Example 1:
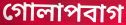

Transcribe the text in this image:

গোলাপবাগ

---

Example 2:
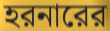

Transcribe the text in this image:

হরনারের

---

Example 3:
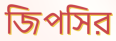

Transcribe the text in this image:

জিপসির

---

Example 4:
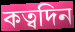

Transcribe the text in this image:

কত্বদিন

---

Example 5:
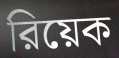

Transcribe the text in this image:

রিয়েক